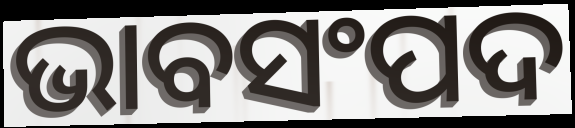
ଭାବସଂପଦ